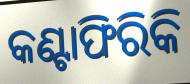
କଣ୍ଟାଫିରିକି